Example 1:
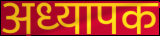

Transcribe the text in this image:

अध्‍यापक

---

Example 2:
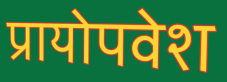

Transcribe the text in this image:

प्रायोपवेश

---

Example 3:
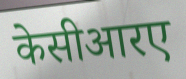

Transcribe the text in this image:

केसीआरए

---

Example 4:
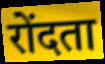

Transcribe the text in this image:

रोंदता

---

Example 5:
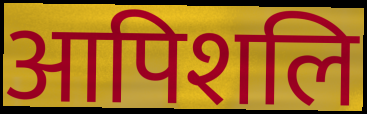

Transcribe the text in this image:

आपिशलि